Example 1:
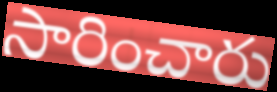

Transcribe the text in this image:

సారించారు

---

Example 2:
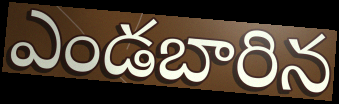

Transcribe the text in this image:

ఎండబారిన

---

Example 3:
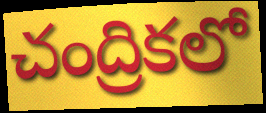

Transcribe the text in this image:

చంద్రికలో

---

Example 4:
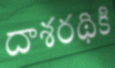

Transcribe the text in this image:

దాశరథికి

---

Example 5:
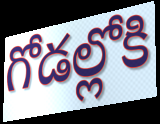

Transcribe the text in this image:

గోడల్లోకి